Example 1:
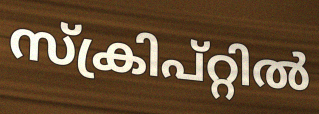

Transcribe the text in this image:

സ്ക്രിപ്റ്റിൽ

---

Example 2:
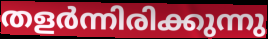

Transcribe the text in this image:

തളർന്നിരിക്കുന്നു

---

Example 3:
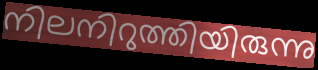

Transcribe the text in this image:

നിലനിറുത്തിയിരുന്നു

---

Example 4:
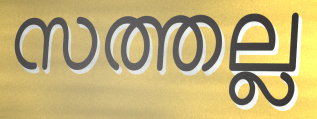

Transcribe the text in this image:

സത്തല്ല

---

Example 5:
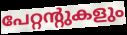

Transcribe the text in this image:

പേറ്റന്റുകളും